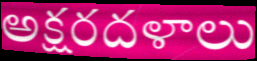
అక్షరదళాలు